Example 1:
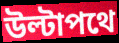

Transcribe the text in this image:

উল্টাপথে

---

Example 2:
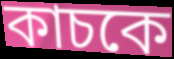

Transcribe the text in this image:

কাচকে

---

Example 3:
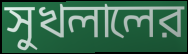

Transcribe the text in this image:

সুখলালের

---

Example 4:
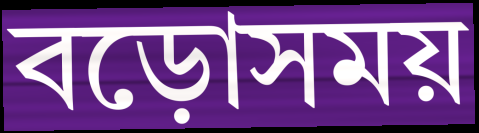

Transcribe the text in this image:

বড়োসময়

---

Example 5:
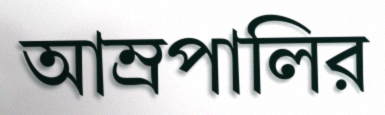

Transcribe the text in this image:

আম্রপালির